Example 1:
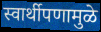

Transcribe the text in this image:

स्वार्थीपणामुळे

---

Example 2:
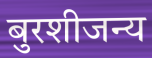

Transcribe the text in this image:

बुरशीजन्य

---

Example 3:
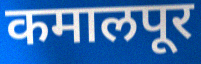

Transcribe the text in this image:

कमालपूर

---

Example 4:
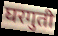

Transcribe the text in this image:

घरगुती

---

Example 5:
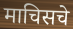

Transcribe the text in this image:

माचिसचे